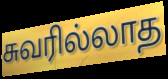
சுவரில்லாத